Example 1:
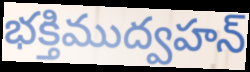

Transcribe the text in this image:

భక్తిముద్వహన్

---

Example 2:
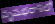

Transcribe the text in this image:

వృషభరాశిలో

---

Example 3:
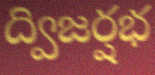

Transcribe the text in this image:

ద్విజర్షభ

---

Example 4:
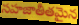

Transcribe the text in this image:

సహజాతీతమైన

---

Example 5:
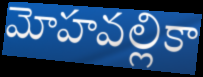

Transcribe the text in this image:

మోహవల్లికా